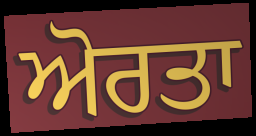
ਅੋਰਤਾ